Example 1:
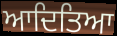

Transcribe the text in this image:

ਆਦਿਤਿਆ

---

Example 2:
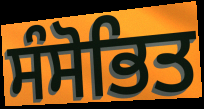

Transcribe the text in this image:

ਸੰਸੋਭਿਤ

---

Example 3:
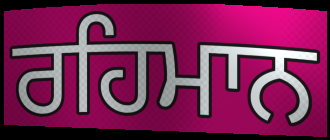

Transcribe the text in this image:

ਰਹਿਮਾਨ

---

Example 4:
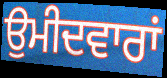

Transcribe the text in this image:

ਉਮੀਦਵਾਰਾਂ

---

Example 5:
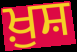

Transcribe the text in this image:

ਖ਼ੁਸ਼